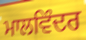
ਮਾਲਵਿੰਦਰ